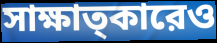
সাক্ষাত্কারেও